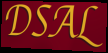
DSAL